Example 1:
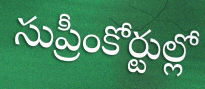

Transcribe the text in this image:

సుప్రీంకోర్టుల్లో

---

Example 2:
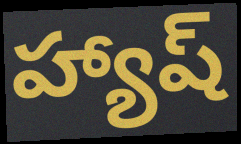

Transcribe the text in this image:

హ్యాష్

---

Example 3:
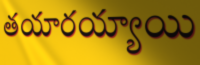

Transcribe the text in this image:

తయారయ్యాయి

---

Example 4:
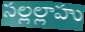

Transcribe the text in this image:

సల్లల్లాహు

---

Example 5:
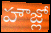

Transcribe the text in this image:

హౌజ్లో